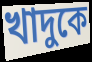
খাদুকে